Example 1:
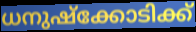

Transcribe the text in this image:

ധനുഷ്ക്കോടിക്ക്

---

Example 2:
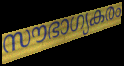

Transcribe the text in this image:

സൗഭാഗ്യകരം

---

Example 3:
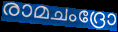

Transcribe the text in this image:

രാമചംദ്രോ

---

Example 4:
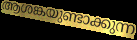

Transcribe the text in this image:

ആശങ്കയുണ്ടാക്കുന്ന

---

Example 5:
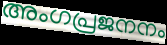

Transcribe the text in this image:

അംഗപ്രജനനം